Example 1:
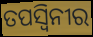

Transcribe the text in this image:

ତପସ୍ୱିନୀର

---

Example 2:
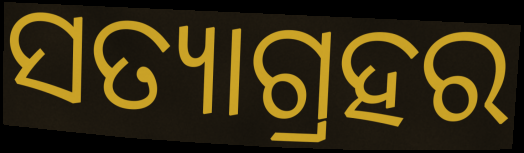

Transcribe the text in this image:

ସତ୍ୟାଗ୍ରହର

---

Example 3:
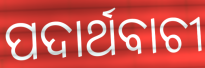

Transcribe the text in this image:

ପଦାର୍ଥବାଚୀ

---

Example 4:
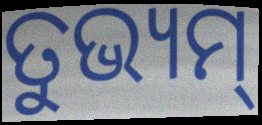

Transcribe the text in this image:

ତୁଭ୍ୟମ୍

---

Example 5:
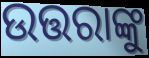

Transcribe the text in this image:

ଉତ୍ତରାଙ୍କୁ